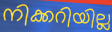
നിക്കറിയില്ല